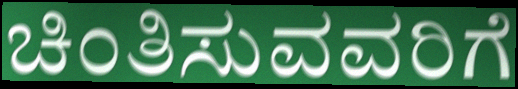
ಚಿಂತಿಸುವವರಿಗೆ